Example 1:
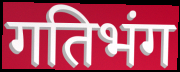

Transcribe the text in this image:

गतिभंग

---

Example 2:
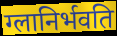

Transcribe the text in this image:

ग्लानिर्भवति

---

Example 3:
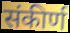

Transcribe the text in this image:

संकीर्ण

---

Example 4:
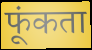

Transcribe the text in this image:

फूंकता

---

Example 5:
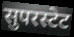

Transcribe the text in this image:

सुपरस्टेट